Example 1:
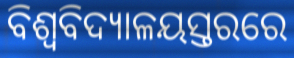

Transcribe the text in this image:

ବିଶ୍ୱବିଦ୍ୟାଳୟସ୍ତରରେ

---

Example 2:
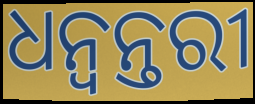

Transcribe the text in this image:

ଧନ୍ବନ୍ତରୀ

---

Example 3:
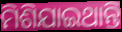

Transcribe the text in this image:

ମିଶିଯାଇଥାନ୍ତି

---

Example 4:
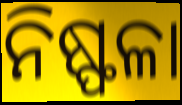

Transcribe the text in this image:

ନିଷ୍ଫଳା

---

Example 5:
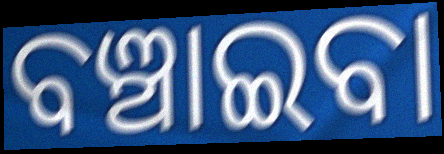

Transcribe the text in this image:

ବଞ୍ଚାଇବା